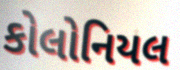
કોલોનિયલ